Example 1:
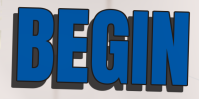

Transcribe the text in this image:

BEGIN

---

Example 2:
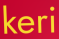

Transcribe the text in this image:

keri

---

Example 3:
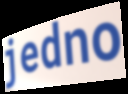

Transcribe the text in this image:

jedno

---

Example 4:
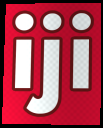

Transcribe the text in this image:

iji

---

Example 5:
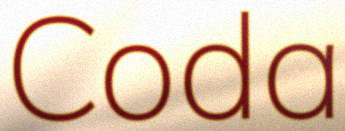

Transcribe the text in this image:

Coda